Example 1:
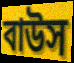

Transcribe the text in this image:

বাউস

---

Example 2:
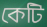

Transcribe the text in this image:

কেটি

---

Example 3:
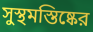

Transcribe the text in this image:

সুস্থমস্তিষ্কের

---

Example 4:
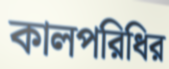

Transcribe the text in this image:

কালপরিধির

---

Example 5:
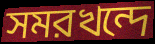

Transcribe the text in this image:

সমরখন্দে